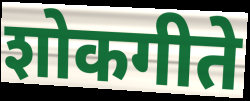
शोकगीते